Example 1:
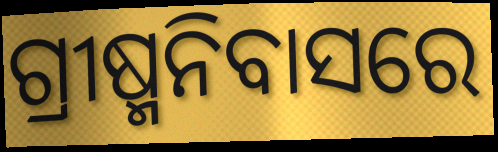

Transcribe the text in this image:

ଗ୍ରୀଷ୍ମନିବାସରେ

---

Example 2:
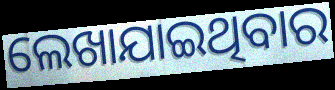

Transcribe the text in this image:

ଲେଖାଯାଇଥିବାର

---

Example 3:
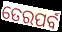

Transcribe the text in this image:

ତେରପର୍ବ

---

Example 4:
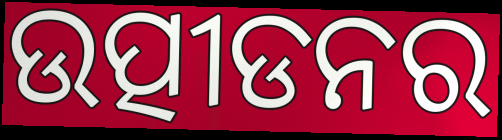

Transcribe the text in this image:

ଉତ୍ପୀଡନର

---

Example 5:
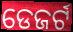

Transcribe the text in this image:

ଡେଜର୍ଟ